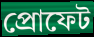
প্রোফেট